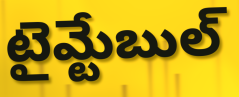
టైమ్టేబుల్